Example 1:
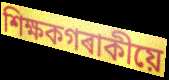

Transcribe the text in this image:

শিক্ষকগৰাকীয়ে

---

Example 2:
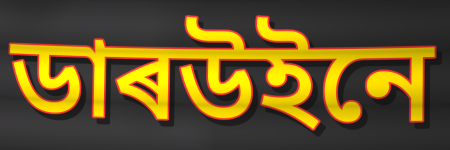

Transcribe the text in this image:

ডাৰউইনে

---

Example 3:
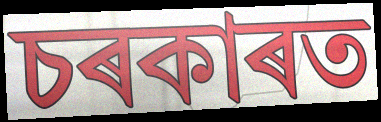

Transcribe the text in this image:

চৰকাৰত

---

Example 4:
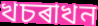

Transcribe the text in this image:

খচৰাখন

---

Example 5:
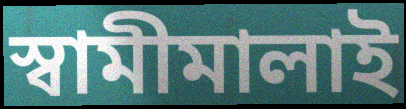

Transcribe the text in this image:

স্বামীমালাই